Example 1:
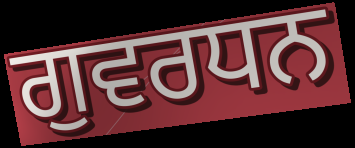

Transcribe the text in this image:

ਗੁਵਰਧਨ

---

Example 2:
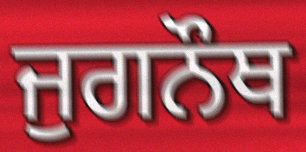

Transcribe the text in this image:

ਜੁਗਨੌਥ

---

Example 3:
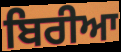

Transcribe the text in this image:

ਬਿਰੀਆ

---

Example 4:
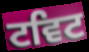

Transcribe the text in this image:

ਟਵਿਟ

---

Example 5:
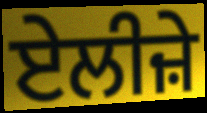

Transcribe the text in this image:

ਏਲੀਜ਼ੇ